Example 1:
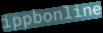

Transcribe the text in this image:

ippbonline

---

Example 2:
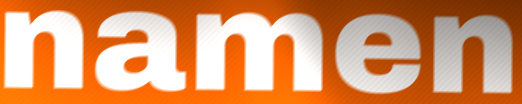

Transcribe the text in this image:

namen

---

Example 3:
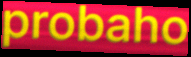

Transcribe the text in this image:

probaho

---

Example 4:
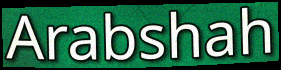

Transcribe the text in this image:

Arabshah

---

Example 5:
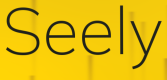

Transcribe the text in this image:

Seely